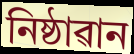
নিষ্ঠাৱান